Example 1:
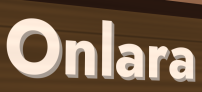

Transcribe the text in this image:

Onlara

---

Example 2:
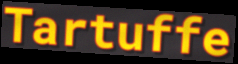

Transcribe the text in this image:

Tartuffe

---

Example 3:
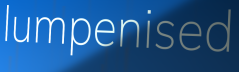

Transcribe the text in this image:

lumpenised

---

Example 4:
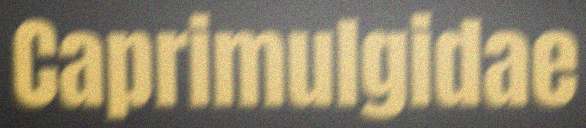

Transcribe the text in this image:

Caprimulgidae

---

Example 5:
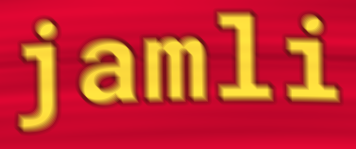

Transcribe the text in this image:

jamli